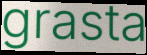
grasta